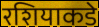
रशियाकडे